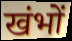
खंभों